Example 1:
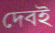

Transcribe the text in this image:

দেবই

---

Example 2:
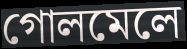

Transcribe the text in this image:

গোলমেলে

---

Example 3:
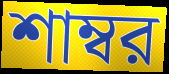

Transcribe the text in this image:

শাম্বর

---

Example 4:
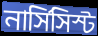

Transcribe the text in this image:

নার্সিসিস্ট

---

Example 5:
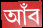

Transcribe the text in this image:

আঁব